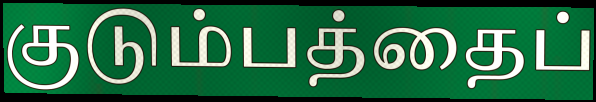
குடும்பத்தைப்